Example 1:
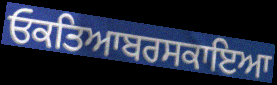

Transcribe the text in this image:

ਓਕਤਿਆਬਰਸਕਾਇਆ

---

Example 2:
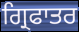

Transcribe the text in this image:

ਗ੍ਰਿਫਾਤਰ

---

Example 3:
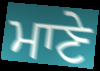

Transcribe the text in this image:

ਮਾਣੇ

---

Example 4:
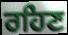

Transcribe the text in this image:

ਰਹਿਣ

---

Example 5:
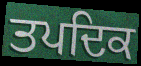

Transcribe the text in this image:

ਤਪਦਿਕ